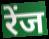
रेंज